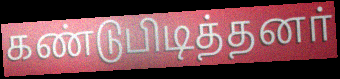
கண்டுபிடித்தனர்